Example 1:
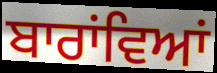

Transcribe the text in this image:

ਬਾਰਾਂਵਿਆਂ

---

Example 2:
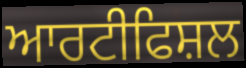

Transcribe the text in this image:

ਆਰਟੀਫਿਸ਼ਲ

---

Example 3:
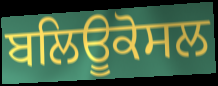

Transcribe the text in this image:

ਬਲਿਊਕੋਸਲ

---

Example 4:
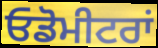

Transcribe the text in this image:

ਓਡੋਮੀਟਰਾਂ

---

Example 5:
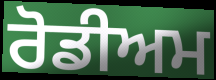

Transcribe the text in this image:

ਰੋਡੀਅਮ